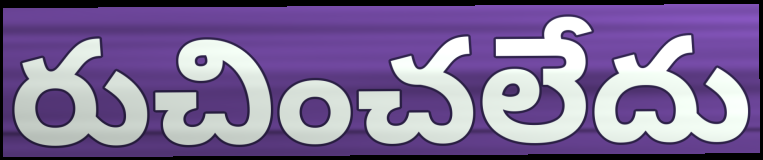
రుచించలేదు